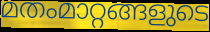
മതംമാറ്റങ്ങളുടെ